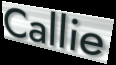
Callie